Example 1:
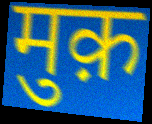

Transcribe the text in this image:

मुक़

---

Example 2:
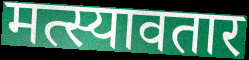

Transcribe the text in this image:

मत्स्यावतार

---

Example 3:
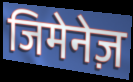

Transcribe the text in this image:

जिमेनेज़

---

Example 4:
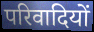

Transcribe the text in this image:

परिवादियों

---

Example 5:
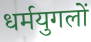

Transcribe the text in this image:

धर्मयुगलों